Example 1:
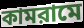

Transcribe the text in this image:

কামরামে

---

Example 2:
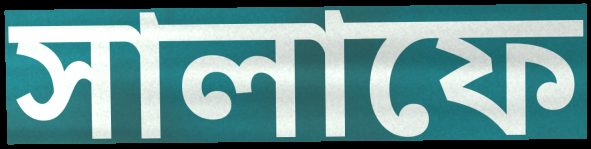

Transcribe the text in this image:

সালাফে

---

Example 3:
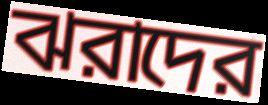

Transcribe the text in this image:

ঝরাদের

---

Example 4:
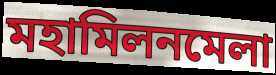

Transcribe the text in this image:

মহামিলনমেলা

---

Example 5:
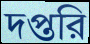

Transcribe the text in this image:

দপ্তরি